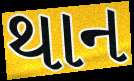
થાન